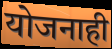
योजनाही